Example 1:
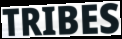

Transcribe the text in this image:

TRIBES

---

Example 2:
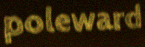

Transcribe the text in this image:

poleward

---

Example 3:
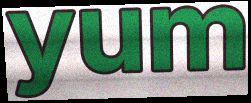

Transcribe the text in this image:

yum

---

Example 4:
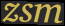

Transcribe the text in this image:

zsm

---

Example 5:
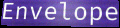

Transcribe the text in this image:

Envelope